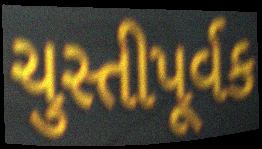
ચુસ્તીપૂર્વક